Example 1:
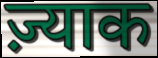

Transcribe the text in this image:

ज़्याक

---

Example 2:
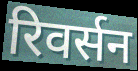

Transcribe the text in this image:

रिवर्सन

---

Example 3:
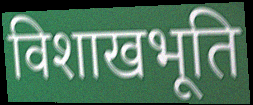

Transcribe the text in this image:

विशाखभूति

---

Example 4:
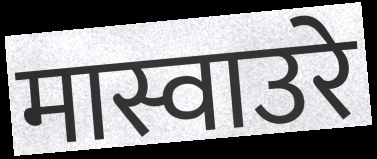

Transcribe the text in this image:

मास्वाउरे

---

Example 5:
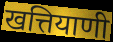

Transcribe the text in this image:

खत्तियाणी